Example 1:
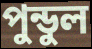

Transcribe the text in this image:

পুন্ডুল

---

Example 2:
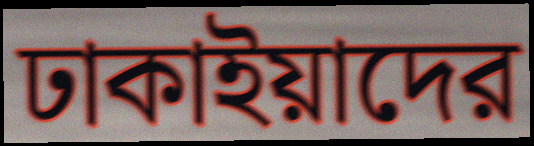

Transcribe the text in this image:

ঢাকাইয়াদের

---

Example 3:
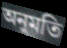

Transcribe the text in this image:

অনুমতি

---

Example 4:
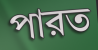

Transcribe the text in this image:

পারত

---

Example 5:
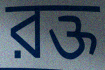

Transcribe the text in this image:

রক্ত